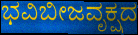
ಭವಿಬೀಜವೃಕ್ಷದ